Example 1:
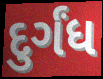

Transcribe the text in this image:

દુર્ગંધ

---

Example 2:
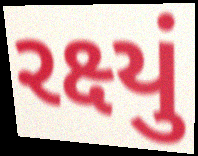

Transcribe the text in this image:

રક્ષ્યું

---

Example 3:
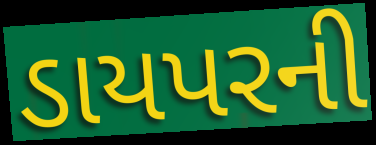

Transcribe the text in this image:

ડાયપરની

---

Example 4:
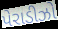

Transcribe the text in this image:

પેરાડીઝો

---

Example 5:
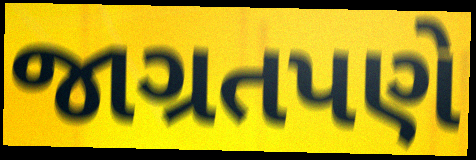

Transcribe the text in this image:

જાગ્રતપણે